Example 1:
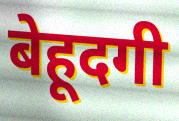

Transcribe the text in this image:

बेहूदगी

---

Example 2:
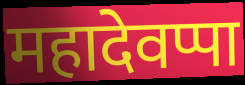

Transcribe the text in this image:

महादेवप्पा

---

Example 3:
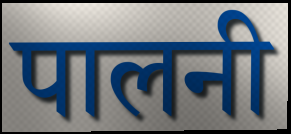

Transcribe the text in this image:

पालनी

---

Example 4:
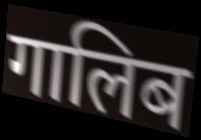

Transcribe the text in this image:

गालिब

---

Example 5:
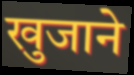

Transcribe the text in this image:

खुजाने